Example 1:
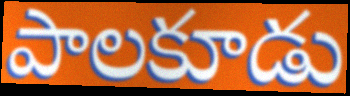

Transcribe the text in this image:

పాలకూడు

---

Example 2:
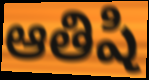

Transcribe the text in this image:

ఆతిషి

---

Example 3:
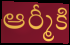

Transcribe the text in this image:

ఆర్మీకి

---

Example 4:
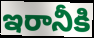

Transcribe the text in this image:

ఇరానీకి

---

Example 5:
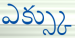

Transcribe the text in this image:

ఎక్స్కు